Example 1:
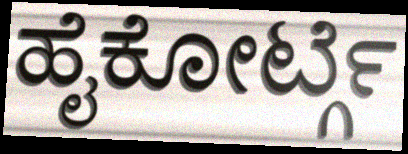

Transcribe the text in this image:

ಹೈಕೋರ್ಟ್ಗೆ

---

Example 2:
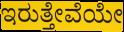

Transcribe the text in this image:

ಇರುತ್ತೇವೆಯೇ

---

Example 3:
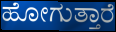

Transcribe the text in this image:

ಹೋಗುತ್ತಾರೆ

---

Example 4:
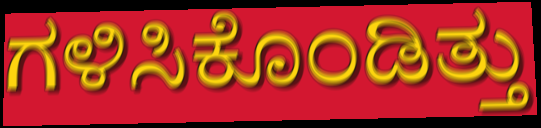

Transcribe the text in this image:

ಗಳಿಸಿಕೊಂಡಿತ್ತು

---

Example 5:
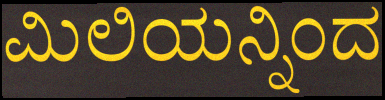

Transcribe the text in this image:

ಮಿಲಿಯನ್ನಿಂದ